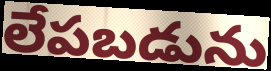
లేపబడును